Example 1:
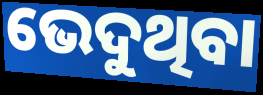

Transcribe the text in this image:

ଭେଦୁଥିବା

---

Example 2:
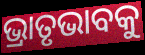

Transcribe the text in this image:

ଭ୍ରାତୃଭାବକୁ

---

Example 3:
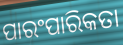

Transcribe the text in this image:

ପାରଂପାରିକତା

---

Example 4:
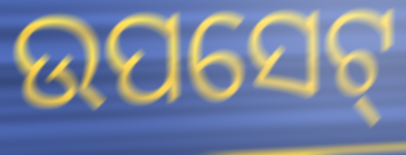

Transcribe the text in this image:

ଉପସେଟ୍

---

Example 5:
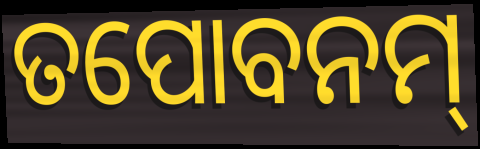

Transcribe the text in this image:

ତପୋବନମ୍